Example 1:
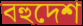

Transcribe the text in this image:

বহুদেশ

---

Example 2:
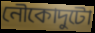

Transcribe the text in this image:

নৌকোদুটো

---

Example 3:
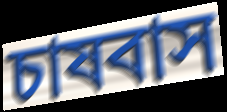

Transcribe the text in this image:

চাষবাস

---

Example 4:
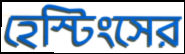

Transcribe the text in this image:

হেস্টিংসের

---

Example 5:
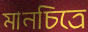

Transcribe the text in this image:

মানচিত্রে